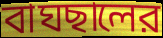
বাঘছালের